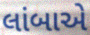
લાંબાએ